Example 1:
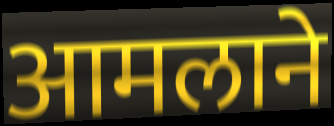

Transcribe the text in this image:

आमलाने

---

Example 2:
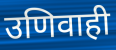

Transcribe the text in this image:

उणिवाही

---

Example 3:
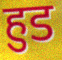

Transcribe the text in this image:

हुड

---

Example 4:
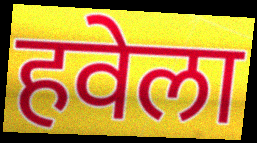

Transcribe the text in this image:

हवेला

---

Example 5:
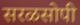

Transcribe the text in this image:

सरळसोपी